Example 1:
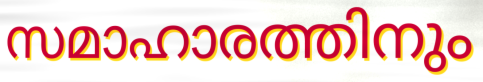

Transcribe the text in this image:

സമാഹാരത്തിനും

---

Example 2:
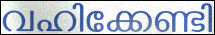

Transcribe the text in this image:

വഹിക്കേണ്ടി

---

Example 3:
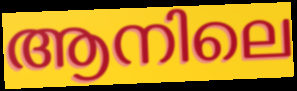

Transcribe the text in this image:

ആനിലെ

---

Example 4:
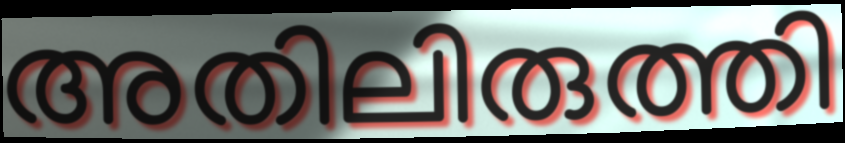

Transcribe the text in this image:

അതിലിരുത്തി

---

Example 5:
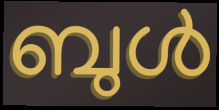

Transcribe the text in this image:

ബുൾ